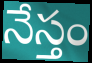
నేస్తం